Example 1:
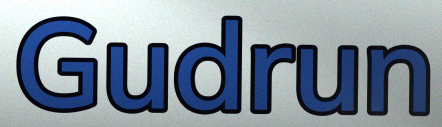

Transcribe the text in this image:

Gudrun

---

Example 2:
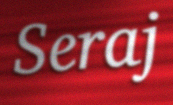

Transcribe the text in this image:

Seraj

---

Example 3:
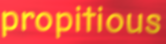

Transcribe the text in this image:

propitious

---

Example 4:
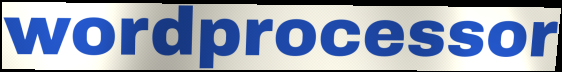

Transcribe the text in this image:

wordprocessor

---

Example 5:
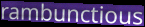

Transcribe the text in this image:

rambunctious